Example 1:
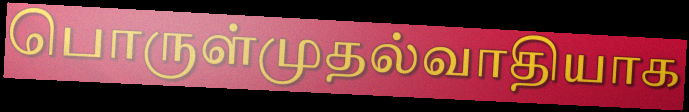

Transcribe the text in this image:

பொருள்முதல்வாதியாக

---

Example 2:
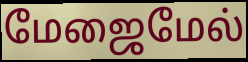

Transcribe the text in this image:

மேஜைமேல்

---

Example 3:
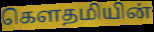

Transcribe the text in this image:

கெளதமியின்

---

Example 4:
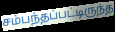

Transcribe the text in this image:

சம்பந்தப்பட்டிருந்த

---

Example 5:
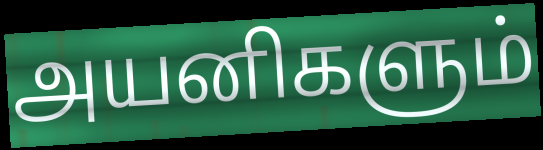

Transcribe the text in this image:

அயனிகளும்